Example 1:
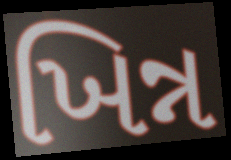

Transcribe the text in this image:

ખિન્ન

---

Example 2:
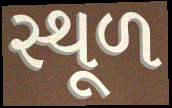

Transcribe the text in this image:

સ્થૂળ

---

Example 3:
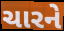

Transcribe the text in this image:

ચારને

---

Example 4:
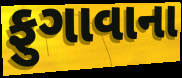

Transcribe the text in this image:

ફુગાવાના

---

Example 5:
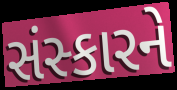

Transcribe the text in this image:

સંસ્કારને